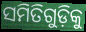
ସମିତିଗୁଡ଼ିକୁ